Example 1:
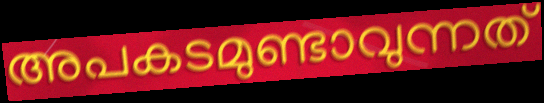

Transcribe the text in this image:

അപകടമുണ്ടാവുന്നത്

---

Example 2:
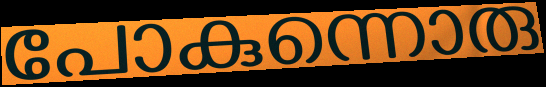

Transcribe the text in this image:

പോകുന്നൊരു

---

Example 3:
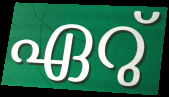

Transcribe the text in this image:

ഏറു്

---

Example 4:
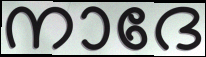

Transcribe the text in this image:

നാദേ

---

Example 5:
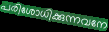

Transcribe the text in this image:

പരിശോധിക്കുന്നവനേ